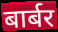
बार्बर